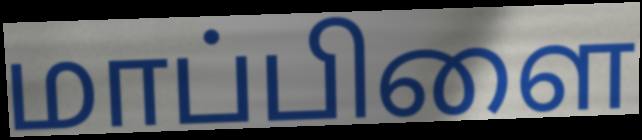
மாப்பிளை